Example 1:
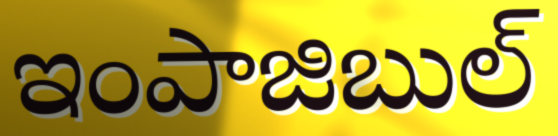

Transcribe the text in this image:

ఇంపాజిబుల్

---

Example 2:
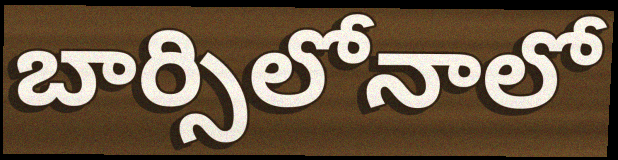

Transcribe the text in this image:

బార్సిలోనాలో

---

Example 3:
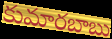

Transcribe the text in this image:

కుమారబాబు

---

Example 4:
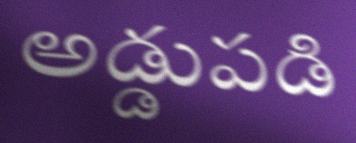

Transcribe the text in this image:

అడ్డుపడి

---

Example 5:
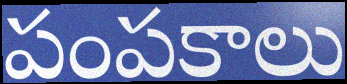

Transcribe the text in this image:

పంపకాలు